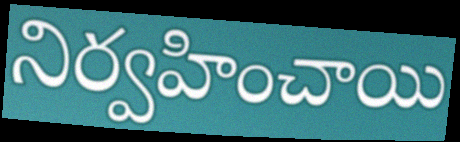
నిర్వహించాయి